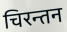
चिरन्तन